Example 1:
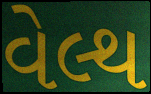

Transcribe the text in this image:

વેલ્થ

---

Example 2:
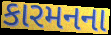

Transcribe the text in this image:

કારમનના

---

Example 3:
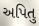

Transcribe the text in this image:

અપિતુ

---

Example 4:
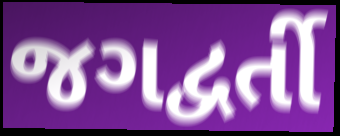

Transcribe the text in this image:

જગદ્વર્તી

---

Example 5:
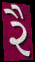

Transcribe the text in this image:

રૈ